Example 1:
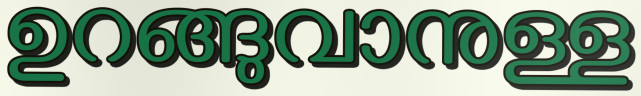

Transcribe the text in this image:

ഉറങ്ങുവാനുള്ള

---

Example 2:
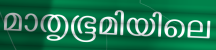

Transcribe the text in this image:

മാതൃഭൂമിയിലെ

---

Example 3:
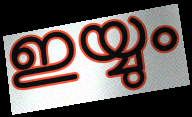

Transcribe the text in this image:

ഇയ്യും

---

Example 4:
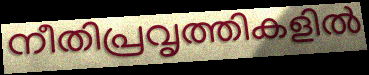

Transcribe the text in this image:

നീതിപ്രവൃത്തികളിൽ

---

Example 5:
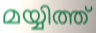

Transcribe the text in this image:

മയ്യിത്ത്